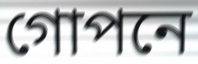
গোপনে